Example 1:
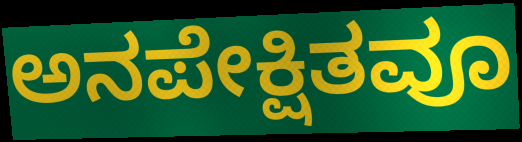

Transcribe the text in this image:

ಅನಪೇಕ್ಷಿತವೂ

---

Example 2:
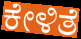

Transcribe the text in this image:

ಕೇಳಿತೆ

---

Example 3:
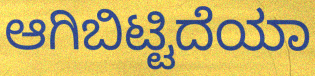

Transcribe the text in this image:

ಆಗಿಬಿಟ್ಟಿದೆಯಾ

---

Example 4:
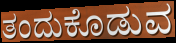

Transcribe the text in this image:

ತಂದುಕೊಡುವ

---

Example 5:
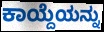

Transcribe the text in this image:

ಕಾಯ್ದೆಯನ್ನು